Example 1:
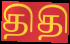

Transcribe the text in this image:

திதி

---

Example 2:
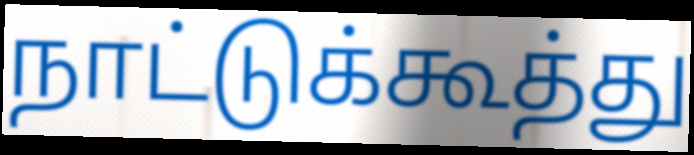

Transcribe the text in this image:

நாட்டுக்கூத்து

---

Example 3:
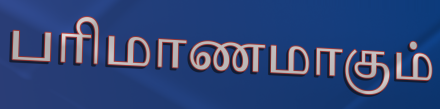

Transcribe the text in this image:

பரிமாணமாகும்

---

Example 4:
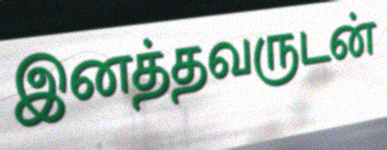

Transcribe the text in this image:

இனத்தவருடன்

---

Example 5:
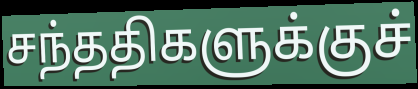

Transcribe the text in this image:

சந்ததிகளுக்குச்